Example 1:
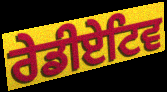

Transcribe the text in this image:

ਰੇਡੀਏਟਿਵ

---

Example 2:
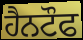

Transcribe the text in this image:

ਹੈਨਟੌਫ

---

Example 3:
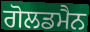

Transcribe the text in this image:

ਗੋਲਡਮੈਨ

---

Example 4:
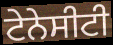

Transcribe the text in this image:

ਟੇਨੇਸੀਟੀ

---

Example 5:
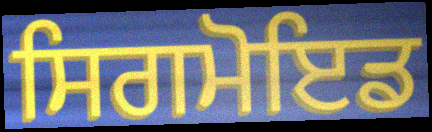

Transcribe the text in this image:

ਸਿਗਮੋਇਡ